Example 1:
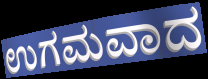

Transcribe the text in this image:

ಉಗಮವಾದ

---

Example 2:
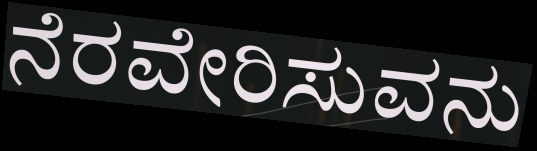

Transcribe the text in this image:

ನೆರವೇರಿಸುವನು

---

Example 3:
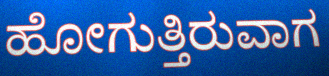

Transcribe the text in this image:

ಹೋಗುತ್ತಿರುವಾಗ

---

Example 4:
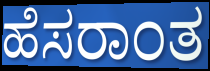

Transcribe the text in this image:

ಹೆಸರಾಂತ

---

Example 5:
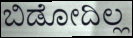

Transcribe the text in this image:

ಬಿಡೋದಿಲ್ಲ